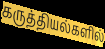
கருத்தியல்களில்